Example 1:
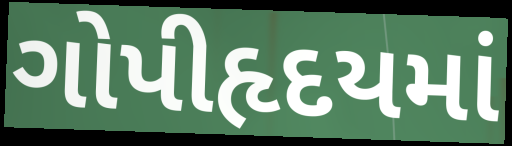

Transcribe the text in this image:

ગોપીહૃદયમાં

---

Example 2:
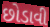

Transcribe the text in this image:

છોડાવી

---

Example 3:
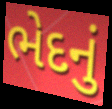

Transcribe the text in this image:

ભેદનું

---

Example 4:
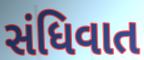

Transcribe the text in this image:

સંધિવાત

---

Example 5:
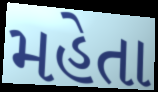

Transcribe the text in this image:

મહેતા